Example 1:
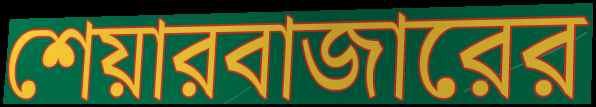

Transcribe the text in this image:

শেয়ারবাজারের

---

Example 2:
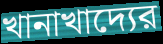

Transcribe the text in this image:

খানাখাদ্যের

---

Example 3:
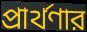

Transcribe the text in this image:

প্রার্থণার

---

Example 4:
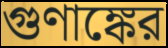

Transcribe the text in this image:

গুণাঙ্কের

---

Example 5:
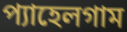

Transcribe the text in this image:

প্যাহেলগাম